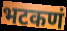
भटकणं